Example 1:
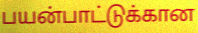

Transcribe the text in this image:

பயன்பாட்டுக்கான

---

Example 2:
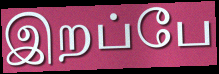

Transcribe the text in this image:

இறப்பே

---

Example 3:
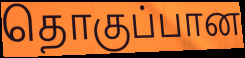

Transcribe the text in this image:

தொகுப்பான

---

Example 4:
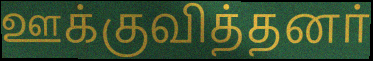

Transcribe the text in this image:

ஊக்குவித்தனர்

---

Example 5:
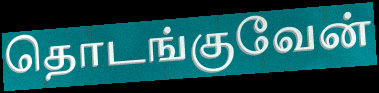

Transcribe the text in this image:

தொடங்குவேன்